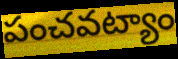
పంచవట్యాం